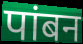
पांबन